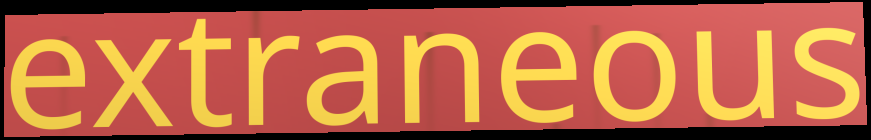
extraneous